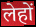
लेहों